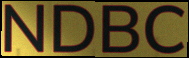
NDBC